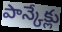
పాన్కేక్లు